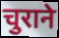
चुराने